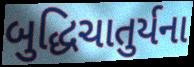
બુદ્ધિચાતુર્યના